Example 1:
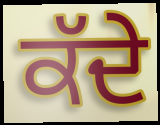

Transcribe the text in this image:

ਕੱਦੇ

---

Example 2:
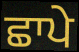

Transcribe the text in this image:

ਛਾਪੇ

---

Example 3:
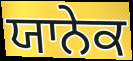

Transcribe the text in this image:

ਯਾਨੇਕ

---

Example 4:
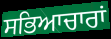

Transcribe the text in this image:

ਸਭਿਆਚਾਰਾਂ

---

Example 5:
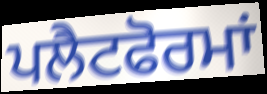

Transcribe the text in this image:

ਪਲੈਟਫੋਰਮਾਂ